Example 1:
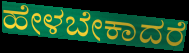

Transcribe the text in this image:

ಹೇಳಬೇಕಾದರೆ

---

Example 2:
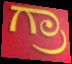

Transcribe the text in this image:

ಗ್ರಾ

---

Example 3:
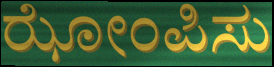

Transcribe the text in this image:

ಝೋಂಪಿಸು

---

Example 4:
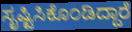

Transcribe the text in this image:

ಸೃಷ್ಟಿಸಿಕೊಂಡಿದ್ದಾರೆ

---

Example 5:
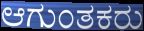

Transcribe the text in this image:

ಆಗುಂತಕರು